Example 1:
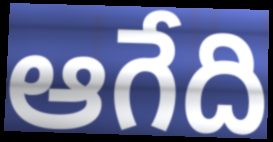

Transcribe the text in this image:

ఆగేది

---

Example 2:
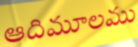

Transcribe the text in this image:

ఆదిమూలము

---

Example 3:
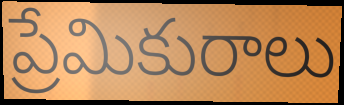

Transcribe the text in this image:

ప్రేమికురాలు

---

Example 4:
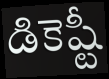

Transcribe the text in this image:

డికెష్టీ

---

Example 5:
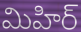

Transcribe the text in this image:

మిహిర్